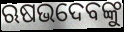
ଋଷଭଦେବଙ୍କୁ